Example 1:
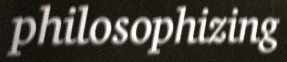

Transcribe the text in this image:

philosophizing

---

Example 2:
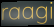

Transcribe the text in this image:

raagi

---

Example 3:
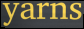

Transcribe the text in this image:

yarns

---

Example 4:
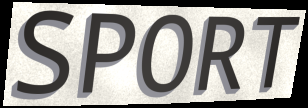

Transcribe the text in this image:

SPORT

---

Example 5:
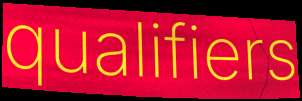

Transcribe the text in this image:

qualifiers